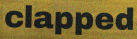
clapped